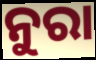
ନୁରା